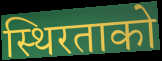
स्थिरताको